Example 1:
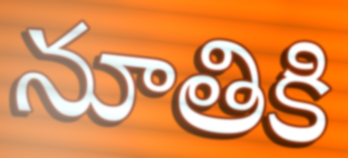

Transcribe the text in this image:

నూతికి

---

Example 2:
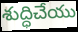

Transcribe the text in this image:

శుద్ధిచేయు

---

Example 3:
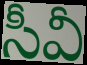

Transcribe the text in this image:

సీవీ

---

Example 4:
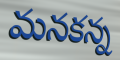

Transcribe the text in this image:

మనకన్న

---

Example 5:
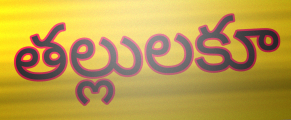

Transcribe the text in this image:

తల్లులకూ